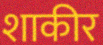
शाकीर